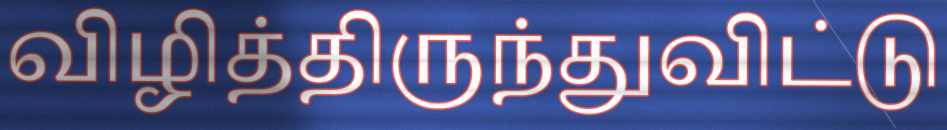
விழித்திருந்துவிட்டு